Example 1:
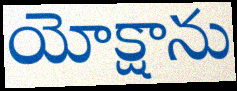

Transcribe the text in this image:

యోక్షాను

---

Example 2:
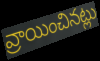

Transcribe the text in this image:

వ్రాయించినట్లు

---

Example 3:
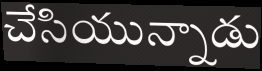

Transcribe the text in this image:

చేసియున్నాడు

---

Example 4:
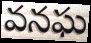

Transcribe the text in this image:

వనఘ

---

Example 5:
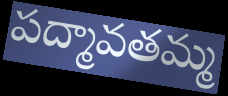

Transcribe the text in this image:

పద్మావతమ్మ